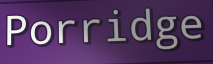
Porridge